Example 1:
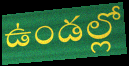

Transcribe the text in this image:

ఉండల్లో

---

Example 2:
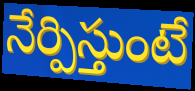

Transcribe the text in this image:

నేర్పిస్తుంటే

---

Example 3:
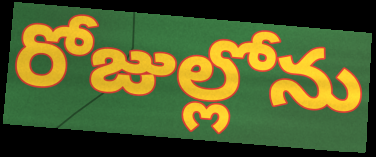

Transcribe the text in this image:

రోజుల్లోను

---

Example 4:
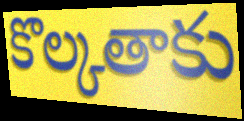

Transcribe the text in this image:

కొల్కతాకు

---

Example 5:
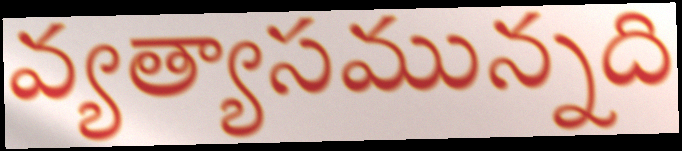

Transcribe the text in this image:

వ్యత్యాసమున్నది